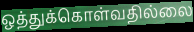
ஒத்துக்கொள்வதில்லை